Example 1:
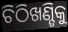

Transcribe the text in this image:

ଚିଠିଖଣ୍ଡିକୁ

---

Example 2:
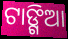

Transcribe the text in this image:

ଟାଙ୍ଗିଆ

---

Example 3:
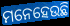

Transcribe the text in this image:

ମନେହେଉଛି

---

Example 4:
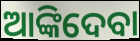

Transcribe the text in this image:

ଆଙ୍କିଦେବା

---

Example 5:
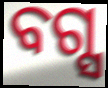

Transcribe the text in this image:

ବଗ୍ସ